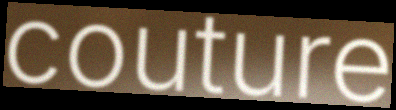
couture